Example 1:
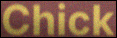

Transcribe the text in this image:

Chick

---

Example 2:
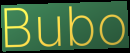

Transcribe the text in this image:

Bubo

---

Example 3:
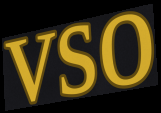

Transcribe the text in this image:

vso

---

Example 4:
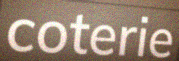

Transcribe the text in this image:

coterie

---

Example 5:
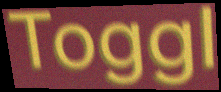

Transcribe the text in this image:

Toggl